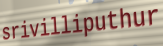
srivilliputhur